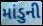
માંડુની